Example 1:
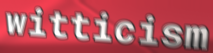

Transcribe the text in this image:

witticism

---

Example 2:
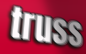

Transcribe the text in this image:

truss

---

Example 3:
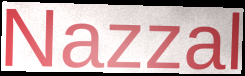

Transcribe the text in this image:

Nazzal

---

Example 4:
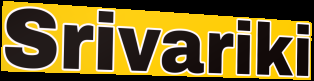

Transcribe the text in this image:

Srivariki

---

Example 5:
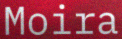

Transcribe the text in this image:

Moira